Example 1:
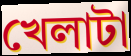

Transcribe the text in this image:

খেলাটা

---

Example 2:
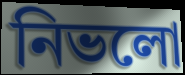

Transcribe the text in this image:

নিভলো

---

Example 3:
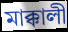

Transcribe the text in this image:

মাক্কালী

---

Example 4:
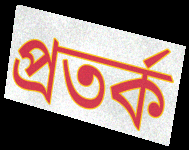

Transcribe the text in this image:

প্রতর্ক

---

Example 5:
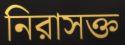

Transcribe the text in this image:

নিরাসক্ত